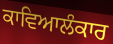
ਕਾਵਿਆਲੰਕਾਰ